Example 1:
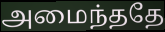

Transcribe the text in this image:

அமைந்ததே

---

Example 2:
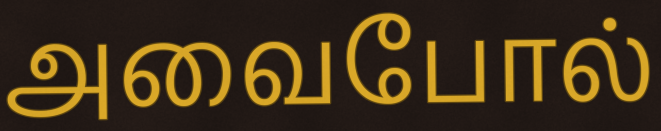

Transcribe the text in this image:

அவைபோல்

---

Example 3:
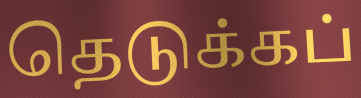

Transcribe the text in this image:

தெடுக்கப்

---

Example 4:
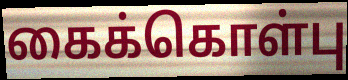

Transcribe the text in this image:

கைக்கொள்பு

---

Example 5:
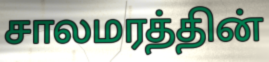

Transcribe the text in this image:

சாலமரத்தின்